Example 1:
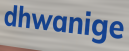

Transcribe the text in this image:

dhwanige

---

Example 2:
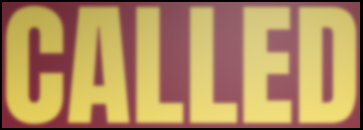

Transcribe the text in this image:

CALLED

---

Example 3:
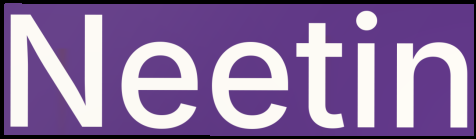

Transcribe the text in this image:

Neetin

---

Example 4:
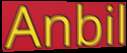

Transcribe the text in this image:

Anbil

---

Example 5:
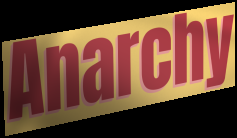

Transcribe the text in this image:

Anarchy